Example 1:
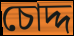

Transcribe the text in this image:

চোদ্দ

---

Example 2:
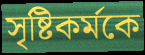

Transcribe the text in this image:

সৃষ্টিকর্মকে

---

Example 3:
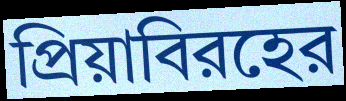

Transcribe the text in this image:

প্রিয়াবিরহের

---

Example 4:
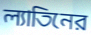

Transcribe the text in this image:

ল্যাতিনের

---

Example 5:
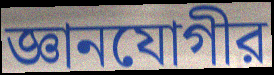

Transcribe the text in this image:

জ্ঞানযোগীর